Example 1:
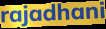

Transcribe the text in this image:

rajadhani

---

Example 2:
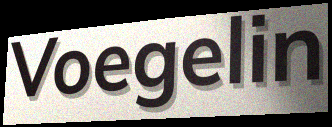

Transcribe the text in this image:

Voegelin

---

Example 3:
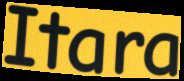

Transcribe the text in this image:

Itara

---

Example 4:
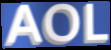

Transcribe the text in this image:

AOL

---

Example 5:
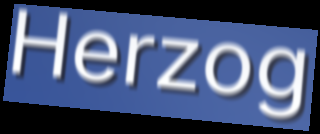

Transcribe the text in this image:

Herzog